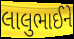
લાલુભાઈને